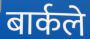
बार्कले